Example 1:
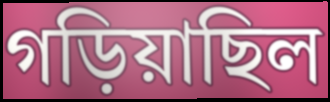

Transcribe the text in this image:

গড়িয়াছিল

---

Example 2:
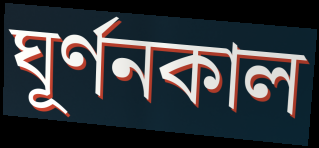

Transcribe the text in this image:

ঘূর্ণনকাল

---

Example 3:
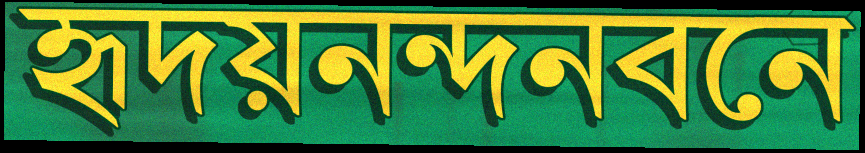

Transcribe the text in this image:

হৃদয়নন্দনবনে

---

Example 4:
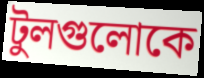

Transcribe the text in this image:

টুলগুলোকে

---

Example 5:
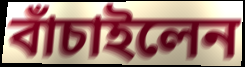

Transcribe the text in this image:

বাঁচাইলেন